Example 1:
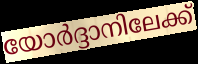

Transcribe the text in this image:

യോർദ്ദാനിലേക്ക്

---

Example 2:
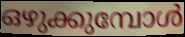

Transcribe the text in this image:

ഒഴുക്കുമ്പോൾ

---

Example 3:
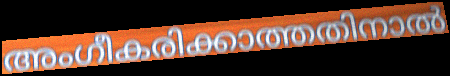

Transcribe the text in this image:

അംഗീകരിക്കാത്തതിനാൽ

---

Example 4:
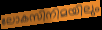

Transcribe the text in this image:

ലോകസിനിമയിലും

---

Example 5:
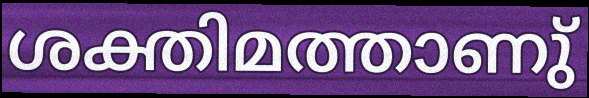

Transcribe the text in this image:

ശക്തിമത്താണു്